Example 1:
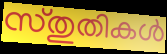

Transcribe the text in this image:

സ്തുതികൾ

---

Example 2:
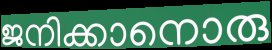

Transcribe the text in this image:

ജനിക്കാനൊരു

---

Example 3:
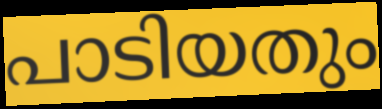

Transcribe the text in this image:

പാടിയതും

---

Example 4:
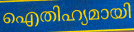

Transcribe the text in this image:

ഐതിഹ്യമായി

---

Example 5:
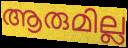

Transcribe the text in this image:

ആരുമില്ല